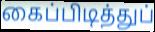
கைப்பிடித்துப்